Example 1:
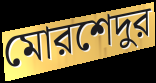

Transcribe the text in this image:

মোরশেদুর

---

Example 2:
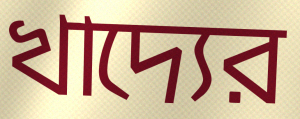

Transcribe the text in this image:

খাদ্যের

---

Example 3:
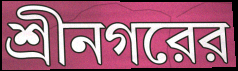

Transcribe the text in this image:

শ্রীনগরের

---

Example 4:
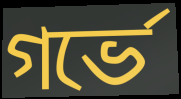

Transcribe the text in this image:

গর্ভে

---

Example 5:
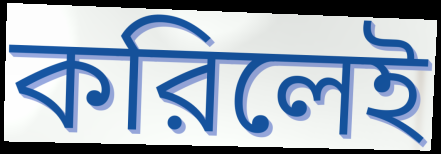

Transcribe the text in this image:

করিলেই